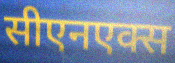
सीएनएक्स